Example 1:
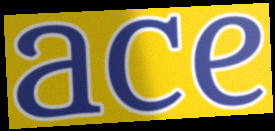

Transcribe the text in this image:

ace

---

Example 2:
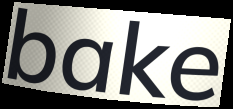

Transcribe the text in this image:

bake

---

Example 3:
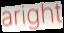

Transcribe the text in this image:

aright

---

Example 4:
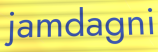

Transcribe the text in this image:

jamdagni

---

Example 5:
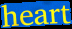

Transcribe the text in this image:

heart